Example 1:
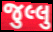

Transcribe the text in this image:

જુલ્લુ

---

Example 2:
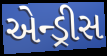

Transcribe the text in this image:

એન્ડ્રીસ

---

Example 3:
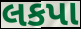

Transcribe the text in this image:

લકપા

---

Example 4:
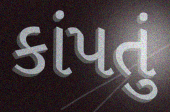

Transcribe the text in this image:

કાંપતું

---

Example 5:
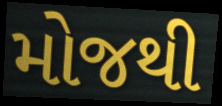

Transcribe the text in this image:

મોજથી